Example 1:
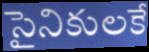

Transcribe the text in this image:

సైనికులకే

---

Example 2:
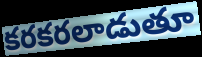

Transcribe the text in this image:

కరకరలాడుతూ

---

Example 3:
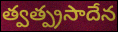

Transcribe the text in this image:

త్వత్ప్రసాదేన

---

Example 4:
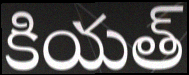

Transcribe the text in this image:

కియత్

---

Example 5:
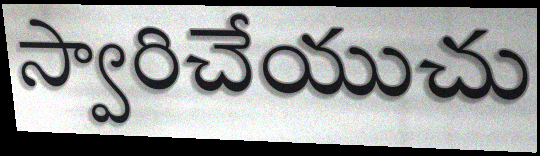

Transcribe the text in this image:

స్వారిచేయుచు